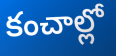
కంచాల్లో